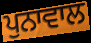
ਪੁਨਾਵਾਲ